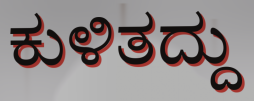
ಕುಳಿತದ್ದು